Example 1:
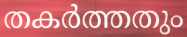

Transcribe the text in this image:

തകർത്തതും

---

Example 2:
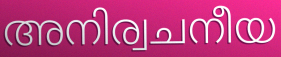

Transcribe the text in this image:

അനിര്വചനീയ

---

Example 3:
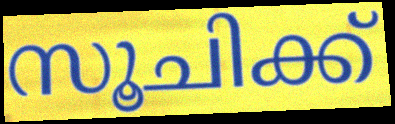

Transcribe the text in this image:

സൂചിക്ക്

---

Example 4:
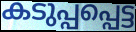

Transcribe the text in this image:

കടുപ്പപ്പെട്ട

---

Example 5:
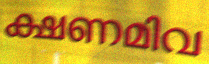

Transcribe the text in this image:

ക്ഷണമിവ